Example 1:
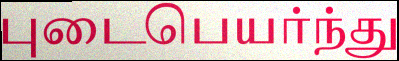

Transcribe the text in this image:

புடைபெயர்ந்து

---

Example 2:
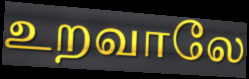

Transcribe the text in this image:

உறவாலே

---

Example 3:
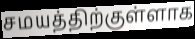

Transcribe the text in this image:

சமயத்திற்குள்ளாக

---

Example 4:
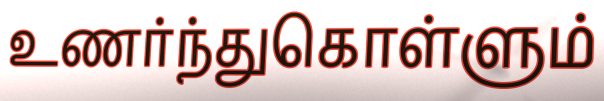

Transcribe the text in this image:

உணர்ந்துகொள்ளும்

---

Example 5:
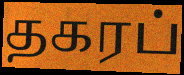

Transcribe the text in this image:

தகரப்